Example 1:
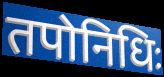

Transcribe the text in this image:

तपोनिधिः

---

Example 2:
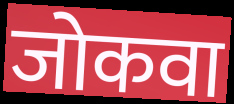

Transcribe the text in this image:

जोकवा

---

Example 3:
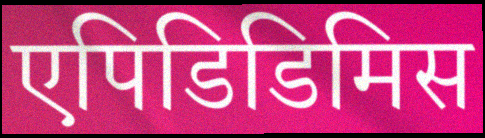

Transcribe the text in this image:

एपिडिडिमिस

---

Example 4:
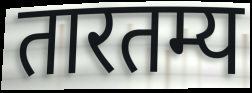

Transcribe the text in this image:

तारतम्य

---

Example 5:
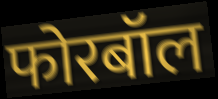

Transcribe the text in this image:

फोरबॉल